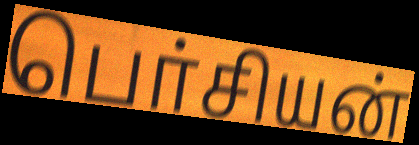
பெர்சியன்